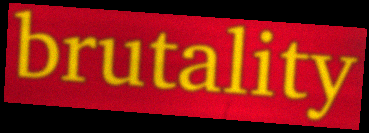
brutality